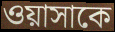
ওয়াসাকে